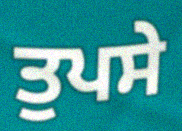
ਤੁਪਸੇ